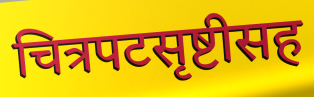
चित्रपटसृष्टीसह